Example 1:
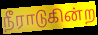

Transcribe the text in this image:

நீராடுகின்ற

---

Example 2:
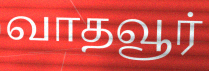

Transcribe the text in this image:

வாதவூர்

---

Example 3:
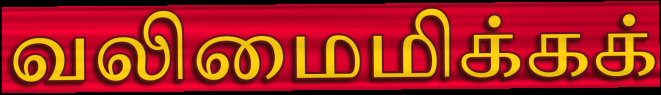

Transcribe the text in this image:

வலிமைமிக்கக்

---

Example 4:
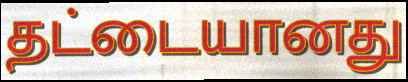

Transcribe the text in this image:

தட்டையானது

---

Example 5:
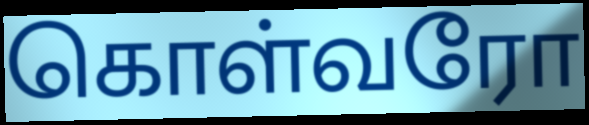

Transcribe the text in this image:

கொள்வரோ